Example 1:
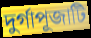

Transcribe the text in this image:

দুর্গাপূজাটি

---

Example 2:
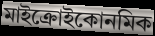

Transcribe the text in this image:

মাইক্রোইকোনমিক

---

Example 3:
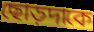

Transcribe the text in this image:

ছোড়দাকে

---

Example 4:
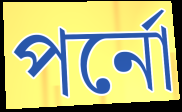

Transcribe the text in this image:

পর্নো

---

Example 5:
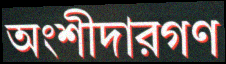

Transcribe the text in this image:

অংশীদারগণ